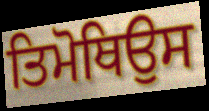
ਤਿਮੋਥਿਉਸ